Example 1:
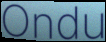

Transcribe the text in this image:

Ondu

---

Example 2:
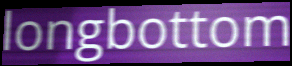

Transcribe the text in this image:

longbottom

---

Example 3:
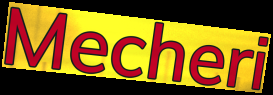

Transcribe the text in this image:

Mecheri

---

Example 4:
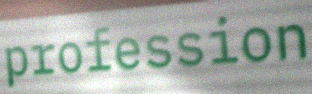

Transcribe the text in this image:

profession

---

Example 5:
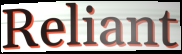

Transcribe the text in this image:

Reliant